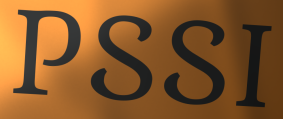
PSSI